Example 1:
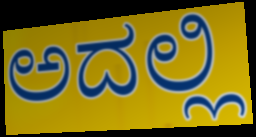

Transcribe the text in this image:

ಅದಲ್ಲಿ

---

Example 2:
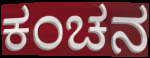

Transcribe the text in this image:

ಕಂಚನ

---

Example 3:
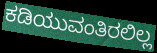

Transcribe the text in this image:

ಕಡಿಯುವಂತಿರಲಿಲ್ಲ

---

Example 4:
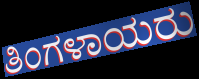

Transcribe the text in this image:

ತಿಂಗಳಾಯರು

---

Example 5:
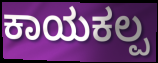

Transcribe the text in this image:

ಕಾಯಕಲ್ಪ